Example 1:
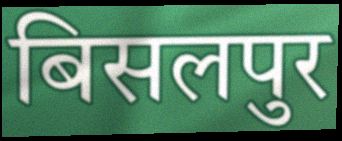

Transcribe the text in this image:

बिसलपुर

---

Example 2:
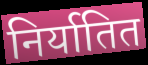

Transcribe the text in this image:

निर्यातित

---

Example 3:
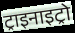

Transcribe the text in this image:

ट्राइनाइट्रो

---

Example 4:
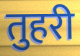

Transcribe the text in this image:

तुहरी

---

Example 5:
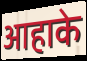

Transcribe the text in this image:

आहाके